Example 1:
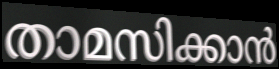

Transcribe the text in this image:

താമസിക്കാൻ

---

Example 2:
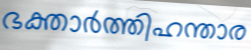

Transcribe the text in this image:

ഭക്താർത്തിഹന്താര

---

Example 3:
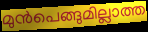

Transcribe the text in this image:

മുൻപെങ്ങുമില്ലാത്ത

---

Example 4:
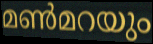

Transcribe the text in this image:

മൺമറയും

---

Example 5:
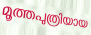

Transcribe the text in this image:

മൂത്തപുത്രിയായ